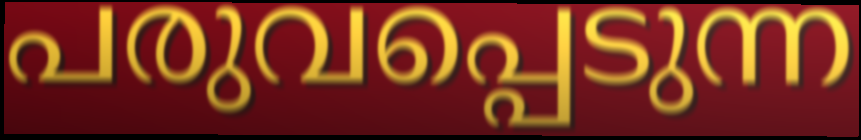
പരുവപ്പെടുന്ന